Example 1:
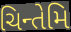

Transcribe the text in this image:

ચિન્તેમિ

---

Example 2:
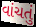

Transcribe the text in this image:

વાંચતું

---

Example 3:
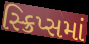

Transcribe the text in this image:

સ્ક્રિપ્સમાં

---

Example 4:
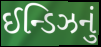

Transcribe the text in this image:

ઈન્ડિઝનું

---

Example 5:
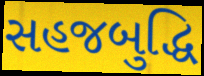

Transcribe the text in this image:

સહજબુદ્ધિ